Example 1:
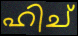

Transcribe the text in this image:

ഹിച്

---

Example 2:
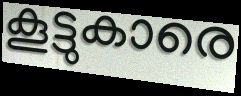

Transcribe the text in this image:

കൂട്ടുകാരെ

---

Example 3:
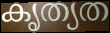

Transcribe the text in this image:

കൃത്യത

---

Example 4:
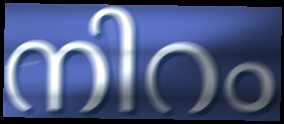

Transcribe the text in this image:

നിറം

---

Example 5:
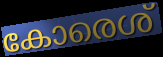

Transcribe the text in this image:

കോരെശ്